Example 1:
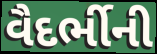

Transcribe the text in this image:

વૈદર્ભીની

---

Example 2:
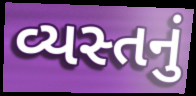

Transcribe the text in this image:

વ્યસ્તનું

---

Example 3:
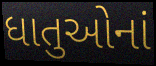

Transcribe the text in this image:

ધાતુઓનાં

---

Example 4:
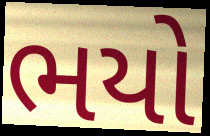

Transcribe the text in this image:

ભયો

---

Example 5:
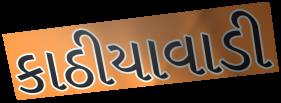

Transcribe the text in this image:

કાઠીયાવાડી